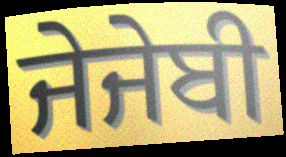
ਜੇਜੇਬੀ